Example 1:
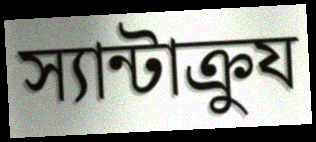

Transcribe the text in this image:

স্যান্টাক্রুয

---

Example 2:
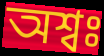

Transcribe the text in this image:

অশ্বঃ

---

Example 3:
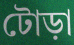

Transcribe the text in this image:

টোড়া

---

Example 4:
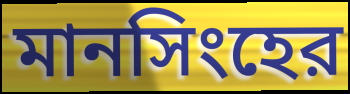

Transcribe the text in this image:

মানসিংহের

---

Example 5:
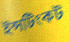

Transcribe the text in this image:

ইন্সটিংকট